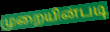
முறையின்படி